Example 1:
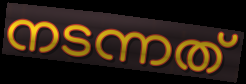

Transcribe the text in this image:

നടന്നത്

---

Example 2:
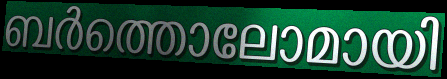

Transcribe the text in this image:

ബർത്തൊലോമായി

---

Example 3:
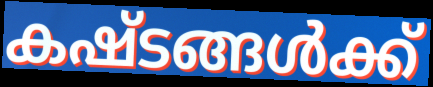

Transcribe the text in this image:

കഷ്ടങ്ങൾക്ക്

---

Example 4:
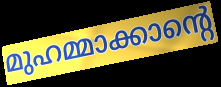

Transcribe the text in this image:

മുഹമ്മാക്കാന്റെ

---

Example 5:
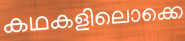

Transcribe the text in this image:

കഥകളിലൊക്കെ